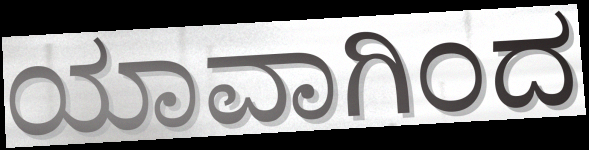
ಯಾವಾಗಿಂದ